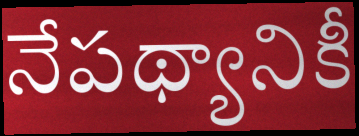
నేపథ్యానికీ